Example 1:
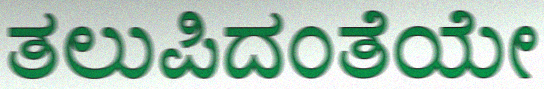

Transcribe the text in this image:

ತಲುಪಿದಂತೆಯೇ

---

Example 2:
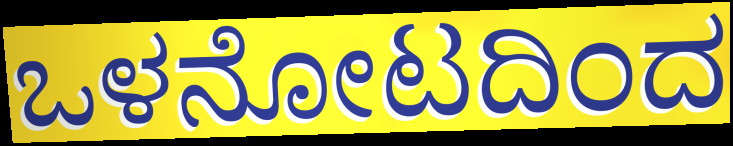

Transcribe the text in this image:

ಒಳನೋಟದಿಂದ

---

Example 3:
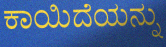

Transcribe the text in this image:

ಕಾಯಿದೆಯನ್ನು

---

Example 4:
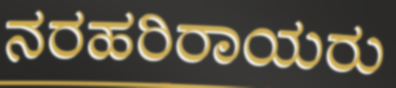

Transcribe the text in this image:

ನರಹರಿರಾಯರು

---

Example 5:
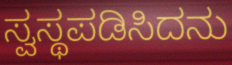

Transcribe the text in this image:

ಸ್ವಸ್ಥಪಡಿಸಿದನು